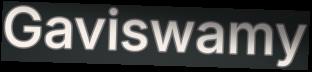
Gaviswamy